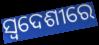
ସ୍ୱଦେଶୀରେ